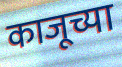
काजूच्या